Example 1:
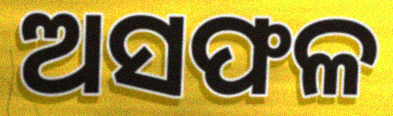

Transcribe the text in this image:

ଅସଫଳ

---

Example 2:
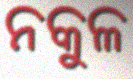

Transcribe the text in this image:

ନକୁଳ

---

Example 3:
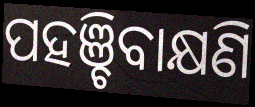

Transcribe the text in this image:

ପହଞ୍ଚିବାକ୍ଷଣି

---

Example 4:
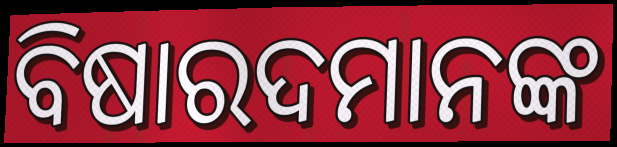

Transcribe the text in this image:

ବିଷାରଦମାନଙ୍କ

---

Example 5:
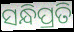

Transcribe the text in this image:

ସନ୍ଧିପ୍ରତି